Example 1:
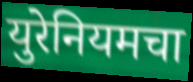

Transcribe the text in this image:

युरेनियमचा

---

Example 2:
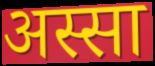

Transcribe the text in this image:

अस्सा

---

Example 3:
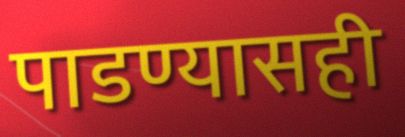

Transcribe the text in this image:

पाडण्यासही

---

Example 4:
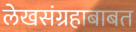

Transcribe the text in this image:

लेखसंग्रहाबाबत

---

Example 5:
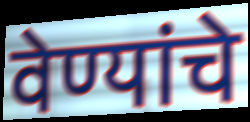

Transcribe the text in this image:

वेण्यांचे